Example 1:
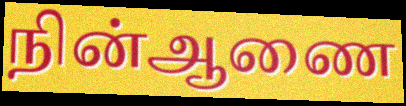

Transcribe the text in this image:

நின்ஆணை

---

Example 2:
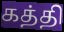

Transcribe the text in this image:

கத்தி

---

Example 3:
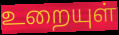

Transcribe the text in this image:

உறையுள்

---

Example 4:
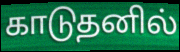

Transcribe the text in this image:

காடுதனில்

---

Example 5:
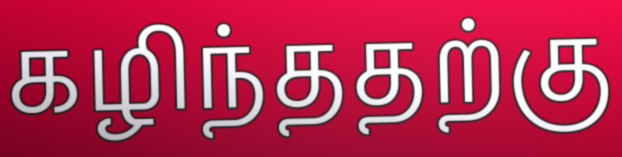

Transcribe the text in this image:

கழிந்ததற்கு